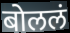
बोललं